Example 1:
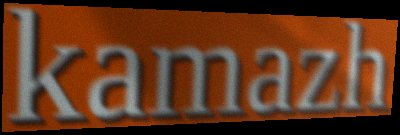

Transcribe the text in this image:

kamazh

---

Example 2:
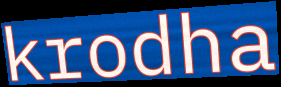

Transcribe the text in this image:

krodha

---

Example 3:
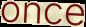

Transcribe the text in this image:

once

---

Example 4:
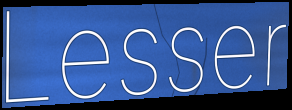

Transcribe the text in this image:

Lesser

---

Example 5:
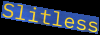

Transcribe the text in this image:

Slitless